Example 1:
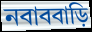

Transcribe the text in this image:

নবাববাড়ি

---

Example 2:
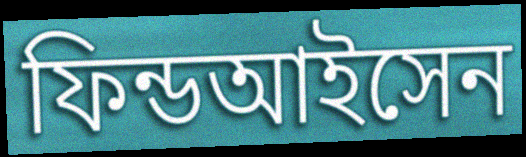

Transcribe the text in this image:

ফিন্ডআইসেন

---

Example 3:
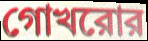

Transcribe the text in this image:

গোখরোর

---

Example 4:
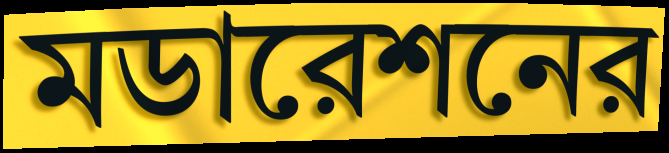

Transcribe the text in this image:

মডারেশনের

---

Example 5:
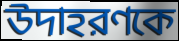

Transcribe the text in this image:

উদাহরণকে